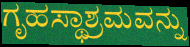
ಗೃಹಸ್ಥಾಶ್ರಮವನ್ನು